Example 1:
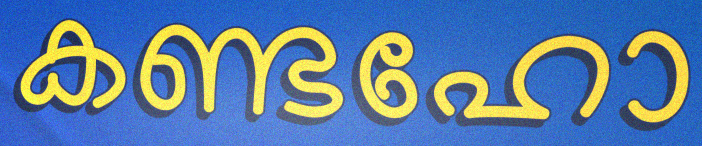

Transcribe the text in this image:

കണ്ടഹോ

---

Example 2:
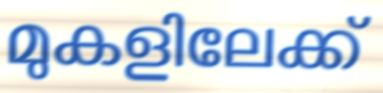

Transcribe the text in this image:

മുകളിലേക്ക്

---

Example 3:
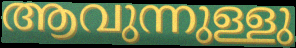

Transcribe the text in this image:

ആവുന്നുള്ളു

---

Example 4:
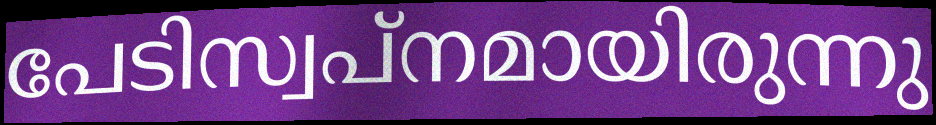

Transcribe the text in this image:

പേടിസ്വപ്നമായിരുന്നു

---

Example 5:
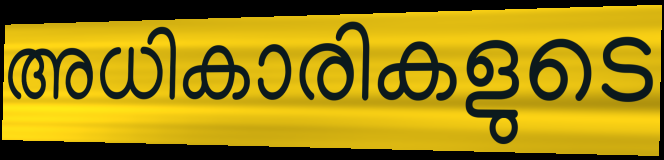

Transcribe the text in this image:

അധികാരികളുടെ